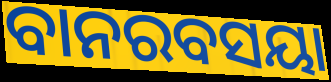
ବାନରବସୟା